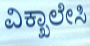
ವಿಕ್ಖಾಲೇಸಿ